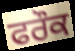
ਫਰੌਕ